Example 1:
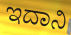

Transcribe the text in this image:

ಇದಾನಿ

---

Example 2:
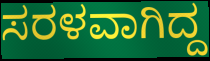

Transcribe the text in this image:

ಸರಳವಾಗಿದ್ದ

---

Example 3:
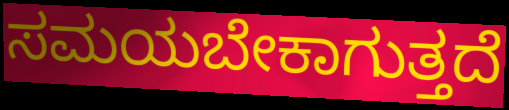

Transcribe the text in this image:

ಸಮಯಬೇಕಾಗುತ್ತದೆ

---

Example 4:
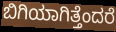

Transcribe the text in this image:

ಬಿಗಿಯಾಗಿತ್ತೆಂದರೆ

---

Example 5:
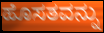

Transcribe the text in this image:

ಹೊಸತವನ್ನು